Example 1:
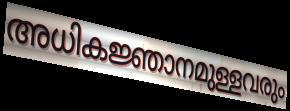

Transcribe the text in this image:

അധികജ്ഞാനമുള്ളവരും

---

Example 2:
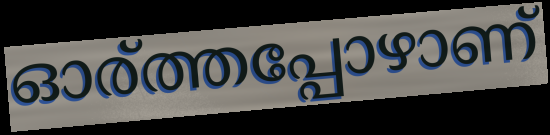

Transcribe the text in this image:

ഓര്ത്തപ്പോഴാണ്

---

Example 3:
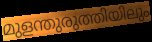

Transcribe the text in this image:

മുളന്തുരുത്തിയിലും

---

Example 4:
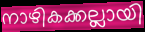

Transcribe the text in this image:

നാഴികക്കല്ലായി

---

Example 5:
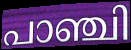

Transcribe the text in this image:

പാഞ്ചി